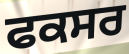
ਫਕਸਰ